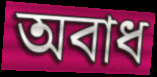
অবাধ